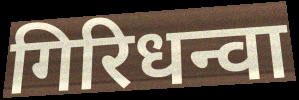
गिरिधन्वा